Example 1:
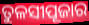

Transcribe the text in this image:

ତୁଳସୀପୂଜାର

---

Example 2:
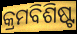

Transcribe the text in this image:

କ୍ରମବିଶିଷ୍ଟ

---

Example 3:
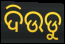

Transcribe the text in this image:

ଦିଉଡୁ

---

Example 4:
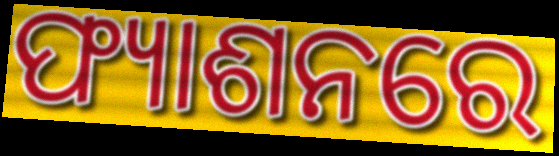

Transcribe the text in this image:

ଫ୍ୟାଶନରେ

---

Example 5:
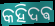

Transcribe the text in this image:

କହିଦଵ